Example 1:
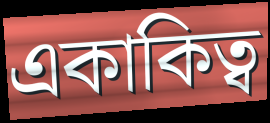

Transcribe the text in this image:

একাকিত্ব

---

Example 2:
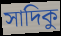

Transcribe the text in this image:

সাদিকু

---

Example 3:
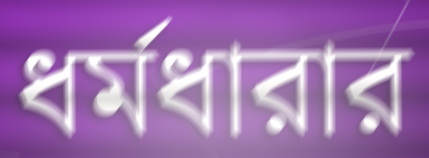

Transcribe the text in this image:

ধর্মধারার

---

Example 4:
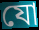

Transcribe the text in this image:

যো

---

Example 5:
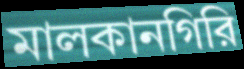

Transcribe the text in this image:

মালকানগিরি